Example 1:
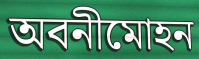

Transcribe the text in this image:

অবনীমোহন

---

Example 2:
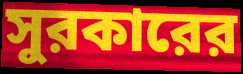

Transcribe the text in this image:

সুরকারের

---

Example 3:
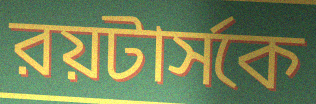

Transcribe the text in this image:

রয়টার্সকে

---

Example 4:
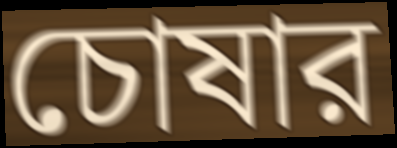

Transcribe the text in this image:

চোষার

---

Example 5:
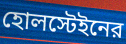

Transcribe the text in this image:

হোলস্টেইনের